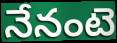
నేనంటె